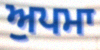
ਅੁਪਮਾ